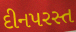
દીનપરસ્ત